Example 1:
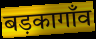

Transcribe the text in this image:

बड़कागाँव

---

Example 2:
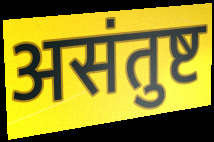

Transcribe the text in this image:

असंतुष्ट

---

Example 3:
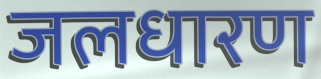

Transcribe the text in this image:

जलधारण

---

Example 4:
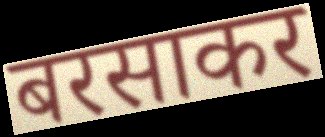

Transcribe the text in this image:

बरसाकर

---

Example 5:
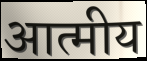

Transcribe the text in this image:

आत्मीय